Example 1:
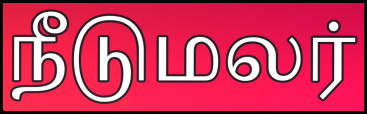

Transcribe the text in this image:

நீடுமலர்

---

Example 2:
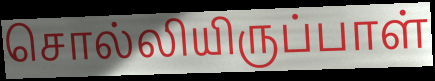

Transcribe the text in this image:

சொல்லியிருப்பாள்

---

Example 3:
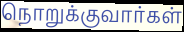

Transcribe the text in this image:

நொறுக்குவார்கள்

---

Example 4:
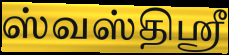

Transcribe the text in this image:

ஸ்வஸ்திஸ்ரீ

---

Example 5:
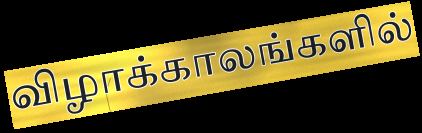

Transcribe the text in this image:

விழாக்காலங்களில்